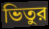
ভিতুর